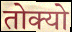
तोक्यो